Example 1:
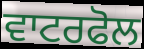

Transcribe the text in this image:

ਵਾਟਰਫੋਲ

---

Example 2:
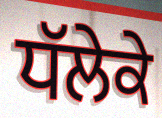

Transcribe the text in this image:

ਧੱਲੇਕੇ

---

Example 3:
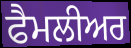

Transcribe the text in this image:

ਫੈਮਲੀਅਰ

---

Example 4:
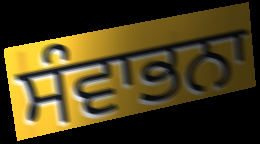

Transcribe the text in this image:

ਸੰਵਾਭਨਾ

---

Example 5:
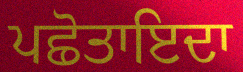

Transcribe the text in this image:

ਪਛੋਤਾਇਦਾ